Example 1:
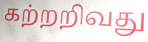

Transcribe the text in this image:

கற்றறிவது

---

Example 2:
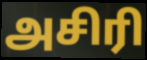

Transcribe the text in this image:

அசிரி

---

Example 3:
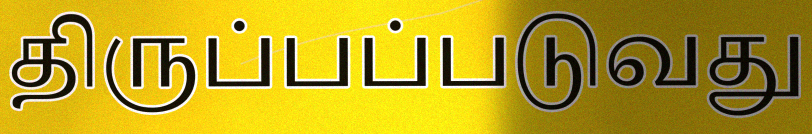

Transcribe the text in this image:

திருப்பப்படுவது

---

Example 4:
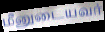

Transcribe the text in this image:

மீனுடையவர்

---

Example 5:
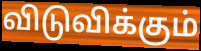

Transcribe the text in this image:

விடுவிக்கும்